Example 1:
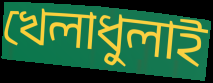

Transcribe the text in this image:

খেলাধুলাই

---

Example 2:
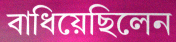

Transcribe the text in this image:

বাধিয়েছিলেন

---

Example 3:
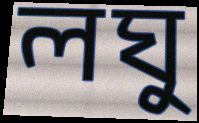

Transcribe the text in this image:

লঘু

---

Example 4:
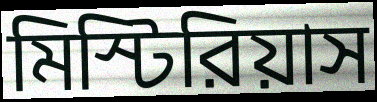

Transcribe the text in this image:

মিস্টিরিয়াস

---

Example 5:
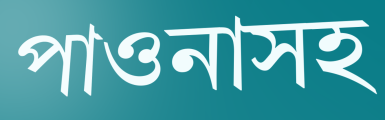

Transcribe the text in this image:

পাওনাসহ